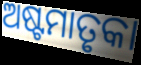
ଅଷ୍ଟମାତୃକା